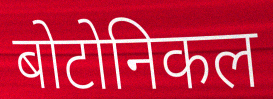
बोटोनिकल